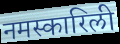
नमस्कारिली